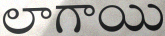
లాగాయి